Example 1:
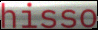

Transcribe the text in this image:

hisso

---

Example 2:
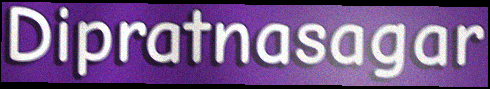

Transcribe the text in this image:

Dipratnasagar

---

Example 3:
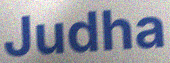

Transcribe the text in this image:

Judha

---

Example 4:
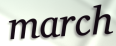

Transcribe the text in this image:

march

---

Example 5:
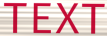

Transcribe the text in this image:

TEXT